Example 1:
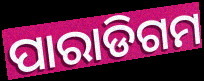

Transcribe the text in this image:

ପାରାଡିଗମ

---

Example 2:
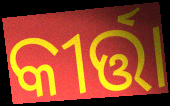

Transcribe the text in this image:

କୀର୍ତ୍ତା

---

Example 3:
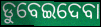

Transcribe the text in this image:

ଡୁବେଇଦେବା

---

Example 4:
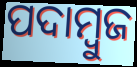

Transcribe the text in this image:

ପଦାମ୍ବୁଜ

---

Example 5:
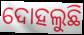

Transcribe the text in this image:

ଦୋହଲୁଛି